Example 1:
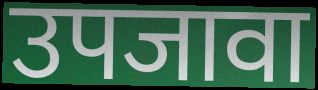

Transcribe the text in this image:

उपजावा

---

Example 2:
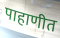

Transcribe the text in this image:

पाहाणीत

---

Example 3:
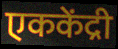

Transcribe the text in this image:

एककेंद्री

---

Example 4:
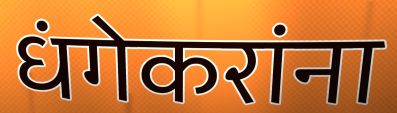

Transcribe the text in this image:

धंगेकरांना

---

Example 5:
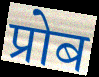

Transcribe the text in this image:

प्रोब